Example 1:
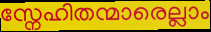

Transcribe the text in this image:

സ്നേഹിതന്മാരെല്ലാം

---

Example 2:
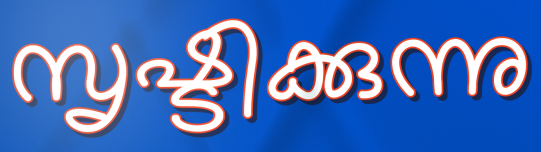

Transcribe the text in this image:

സൃഷ്ടിക്കുന്നു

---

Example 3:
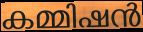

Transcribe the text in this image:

കമ്മിഷൻ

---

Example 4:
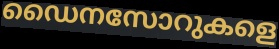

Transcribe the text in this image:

ഡൈനസോറുകളെ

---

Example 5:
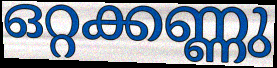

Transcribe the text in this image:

ഒറ്റക്കണ്ണു